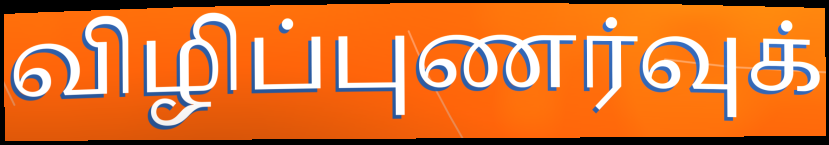
விழிப்புணர்வுக்